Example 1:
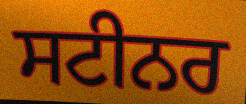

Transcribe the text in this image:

ਸਟੀਨਰ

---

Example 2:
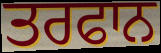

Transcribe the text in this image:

ਤਰਫਾਨ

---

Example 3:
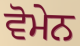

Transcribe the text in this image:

ਵੋਮੇਨ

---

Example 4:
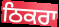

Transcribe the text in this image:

ਠਿਕਰਾ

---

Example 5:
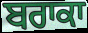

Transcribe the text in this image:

ਬਰਾਕਾ